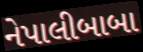
નેપાલીબાબા